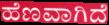
ಹೆಣವಾಗಿದೆ